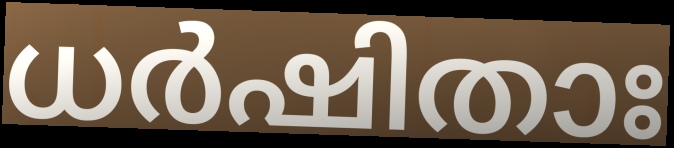
ധർഷിതാഃ